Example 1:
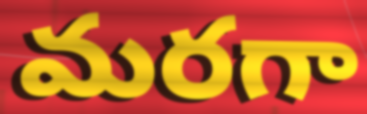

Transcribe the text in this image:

మరగా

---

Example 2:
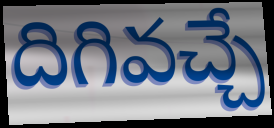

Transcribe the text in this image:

దిగివచ్చే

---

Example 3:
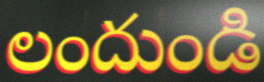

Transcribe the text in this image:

లందుండి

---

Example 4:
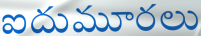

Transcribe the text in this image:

ఐదుమూరలు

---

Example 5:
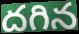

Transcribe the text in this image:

దగిన